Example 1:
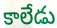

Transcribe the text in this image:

కాలేడు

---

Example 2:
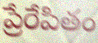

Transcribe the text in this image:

ప్రేరేపితం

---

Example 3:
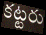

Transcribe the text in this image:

కట్టరు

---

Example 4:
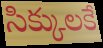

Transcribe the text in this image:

సిక్కులకే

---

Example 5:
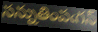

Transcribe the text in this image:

సన్నుతింపఁగన్